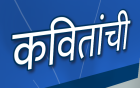
कवितांची